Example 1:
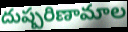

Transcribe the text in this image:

దుష్పరిణామాల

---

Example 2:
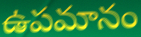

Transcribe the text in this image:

ఉపమానం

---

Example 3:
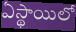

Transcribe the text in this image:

ఏస్థాయిలో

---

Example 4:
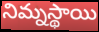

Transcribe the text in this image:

నిమ్నస్థాయి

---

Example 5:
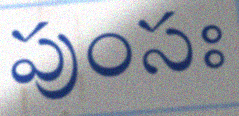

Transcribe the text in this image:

పుంసః